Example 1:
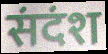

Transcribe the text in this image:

संदंश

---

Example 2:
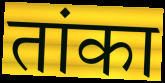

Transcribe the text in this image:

तांका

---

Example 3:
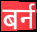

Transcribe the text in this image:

बर्न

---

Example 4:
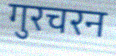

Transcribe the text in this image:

गुरचरन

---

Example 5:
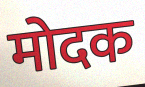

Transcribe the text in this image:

मोदक